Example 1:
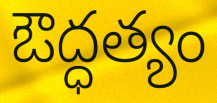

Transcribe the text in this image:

ఔద్ధత్యం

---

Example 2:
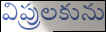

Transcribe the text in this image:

విప్రులకును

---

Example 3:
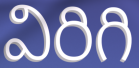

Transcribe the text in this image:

విరిగి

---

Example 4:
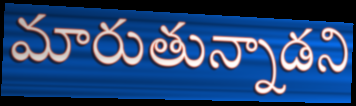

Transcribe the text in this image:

మారుతున్నాడని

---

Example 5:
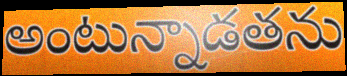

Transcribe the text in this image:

అంటున్నాడతను